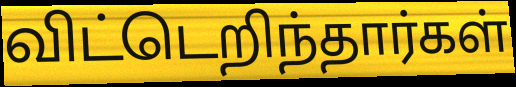
விட்டெறிந்தார்கள்